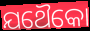
ଯଥୈକୋ